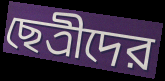
ছেত্রীদের